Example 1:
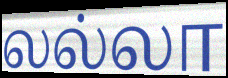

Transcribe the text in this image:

லல்லா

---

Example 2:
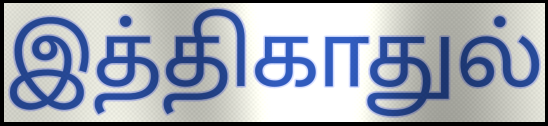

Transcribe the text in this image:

இத்திகாதுல்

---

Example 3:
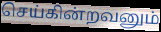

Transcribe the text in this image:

செய்கின்றவனும்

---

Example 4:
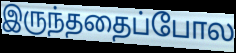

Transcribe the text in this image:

இருந்ததைப்போல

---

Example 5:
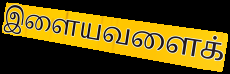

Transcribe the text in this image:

இளையவளைக்